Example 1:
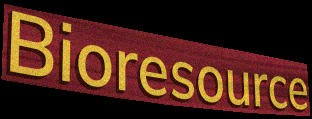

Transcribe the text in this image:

Bioresource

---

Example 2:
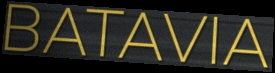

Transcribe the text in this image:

BATAVIA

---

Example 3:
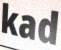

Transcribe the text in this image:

kad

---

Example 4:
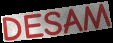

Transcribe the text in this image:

DESAM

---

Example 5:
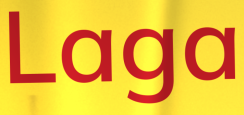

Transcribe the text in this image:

Laga